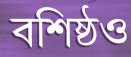
বশিষ্ঠও